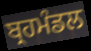
ਬ੍ਰਹਮੰਡਲ